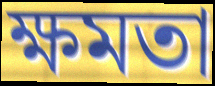
ক্ষমতা